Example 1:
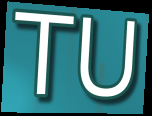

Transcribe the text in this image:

TU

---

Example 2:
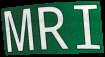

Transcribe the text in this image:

MRI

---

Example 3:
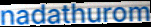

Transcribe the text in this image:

nadathurom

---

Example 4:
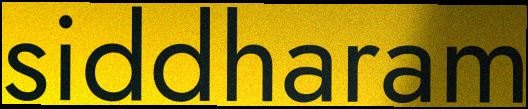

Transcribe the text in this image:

siddharam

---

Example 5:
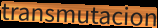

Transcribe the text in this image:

transmutacion